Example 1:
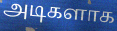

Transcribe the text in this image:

அடிகளாக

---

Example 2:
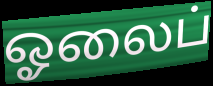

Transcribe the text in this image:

ஓலைப்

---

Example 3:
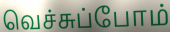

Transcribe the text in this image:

வெச்சுப்போம்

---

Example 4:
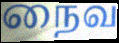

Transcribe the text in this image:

நைவ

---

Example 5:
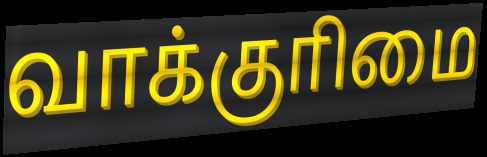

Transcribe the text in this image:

வாக்குரிமை